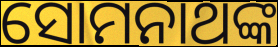
ସୋମନାଥଙ୍କ